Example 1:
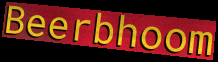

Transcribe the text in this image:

Beerbhoom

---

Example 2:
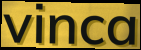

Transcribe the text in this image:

vinca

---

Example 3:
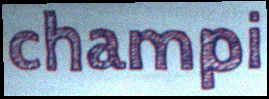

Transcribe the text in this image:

champi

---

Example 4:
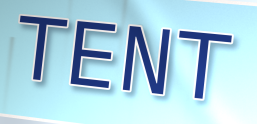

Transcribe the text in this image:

TENT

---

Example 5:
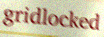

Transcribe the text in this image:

gridlocked